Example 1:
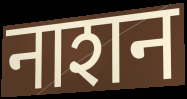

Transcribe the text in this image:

नाशन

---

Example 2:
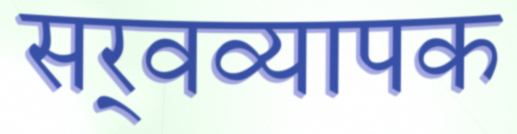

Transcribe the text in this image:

सर्वव्यापक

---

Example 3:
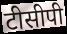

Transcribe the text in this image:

टीसीपी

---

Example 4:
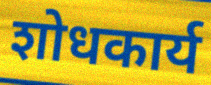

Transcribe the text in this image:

शोधकार्य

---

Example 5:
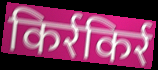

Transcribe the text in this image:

किर्रकिर्र